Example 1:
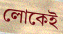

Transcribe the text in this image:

লোকেই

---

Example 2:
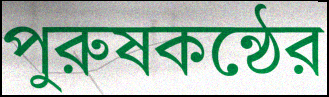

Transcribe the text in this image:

পুরুষকন্ঠের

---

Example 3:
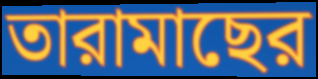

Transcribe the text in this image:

তারামাছের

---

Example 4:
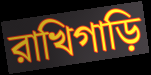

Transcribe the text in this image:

রাখিগাড়ি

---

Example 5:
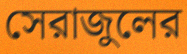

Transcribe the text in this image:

সেরাজুলের